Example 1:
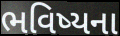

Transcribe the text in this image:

ભવિષ્યના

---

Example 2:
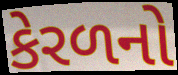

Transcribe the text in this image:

કેરળનો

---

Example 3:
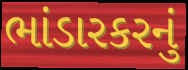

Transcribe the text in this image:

ભાંડારકરનું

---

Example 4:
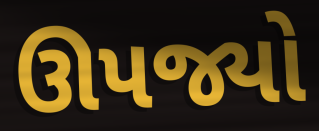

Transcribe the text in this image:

ઊપજ્યો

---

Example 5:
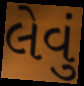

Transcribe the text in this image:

લેવું